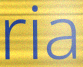
ria